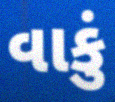
વાકું